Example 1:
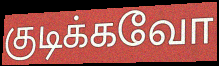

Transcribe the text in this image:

குடிக்கவோ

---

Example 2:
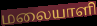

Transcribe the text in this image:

மலையாளி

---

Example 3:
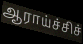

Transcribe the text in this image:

ஆராய்ச்சிச்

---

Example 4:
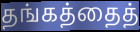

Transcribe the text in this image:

தங்கத்தைத்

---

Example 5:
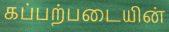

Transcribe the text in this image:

கப்பற்படையின்